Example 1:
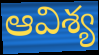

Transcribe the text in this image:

ఆవిశ్య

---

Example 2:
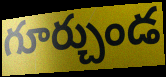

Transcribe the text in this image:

గూర్చుండ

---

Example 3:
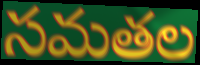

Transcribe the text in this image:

సమతల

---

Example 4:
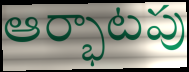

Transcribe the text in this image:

ఆర్భాటపు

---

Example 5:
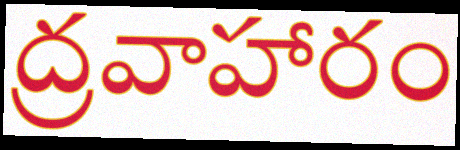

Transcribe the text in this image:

ద్రవాహారం